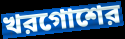
খরগোশের